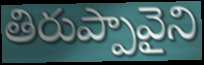
తిరుప్పావైని